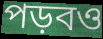
পড়বও